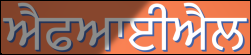
ਐਫਆਈਐਲ